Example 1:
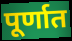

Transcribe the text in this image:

पूर्णात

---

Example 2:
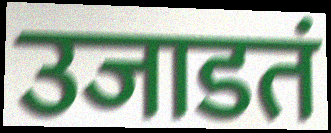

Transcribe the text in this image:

उजाडतं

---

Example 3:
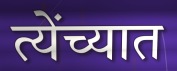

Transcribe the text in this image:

त्येंच्यात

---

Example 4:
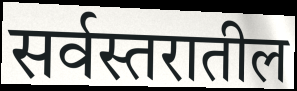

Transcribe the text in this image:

सर्वस्तरातील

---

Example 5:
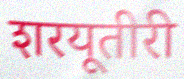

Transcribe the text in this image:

शरयूतीरी